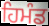
ਹਿਮੰਡ